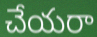
చేయరా